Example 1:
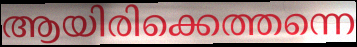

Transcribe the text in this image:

ആയിരിക്കെത്തന്നെ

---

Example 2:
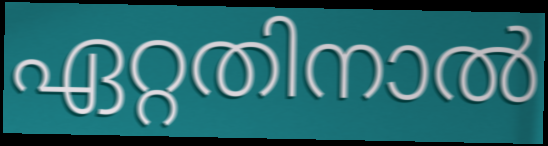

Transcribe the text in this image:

ഏറ്റതിനാൽ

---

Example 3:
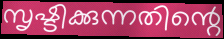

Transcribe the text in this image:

സൃഷ്ടിക്കുന്നതിന്റെ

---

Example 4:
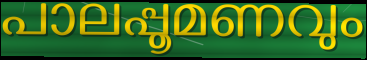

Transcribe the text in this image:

പാലപ്പൂമണവും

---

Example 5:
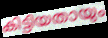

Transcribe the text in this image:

കിട്ടിയതായും